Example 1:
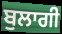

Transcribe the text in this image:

ਬੁਲਾਗੀ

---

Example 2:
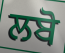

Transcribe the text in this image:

ਲਬੋ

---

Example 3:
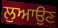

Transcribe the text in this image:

ਲੁਆਉਣ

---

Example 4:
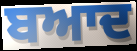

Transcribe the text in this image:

ਬਆਦ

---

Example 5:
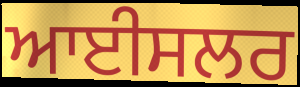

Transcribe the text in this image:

ਆਈਸਲਰ